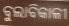
ବୁଲାବିକାଳୀ